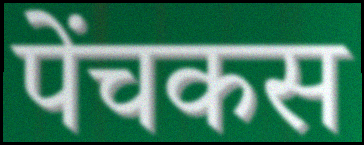
पेंचकस